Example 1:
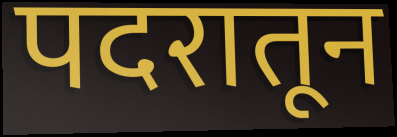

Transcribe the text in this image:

पदरातून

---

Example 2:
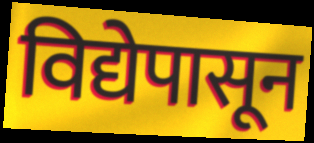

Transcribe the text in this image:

विद्येपासून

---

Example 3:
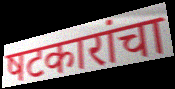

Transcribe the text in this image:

षटकारांचा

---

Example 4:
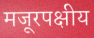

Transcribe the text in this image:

मजूरपक्षीय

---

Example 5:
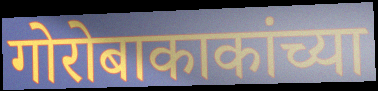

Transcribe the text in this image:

गोरोबाकाकांच्या